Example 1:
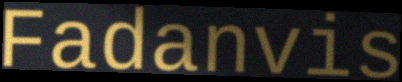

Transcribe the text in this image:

Fadanvis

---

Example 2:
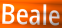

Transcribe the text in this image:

Beale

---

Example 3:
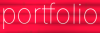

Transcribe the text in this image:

portfolio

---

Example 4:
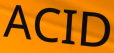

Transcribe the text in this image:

ACID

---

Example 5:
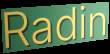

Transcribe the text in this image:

Radin